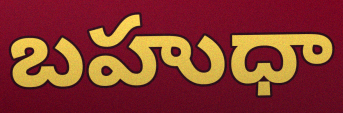
బహుధా